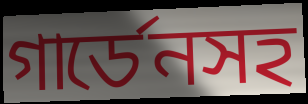
গার্ডেনসহ